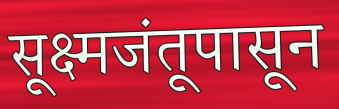
सूक्ष्मजंतूपासून